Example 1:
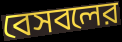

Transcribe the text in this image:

বেসবলের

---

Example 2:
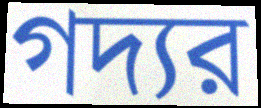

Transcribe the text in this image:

গদ্যর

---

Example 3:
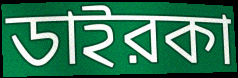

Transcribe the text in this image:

ডাইরকা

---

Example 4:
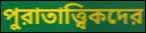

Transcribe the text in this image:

পুরাতাত্ত্বিকদের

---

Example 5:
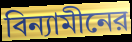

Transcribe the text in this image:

বিন্যামীনের